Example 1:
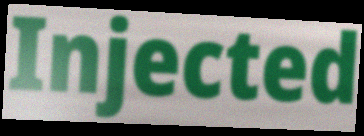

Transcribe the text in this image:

Injected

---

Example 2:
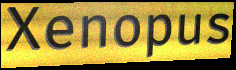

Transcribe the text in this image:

Xenopus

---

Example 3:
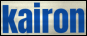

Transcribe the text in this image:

kairon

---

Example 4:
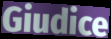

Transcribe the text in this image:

Giudice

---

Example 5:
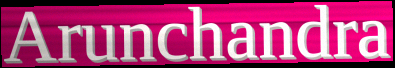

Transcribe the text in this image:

Arunchandra